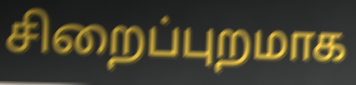
சிறைப்புறமாக